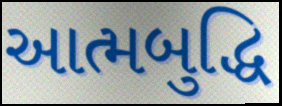
આત્મબુદ્ધિ